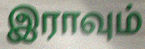
இராவும்